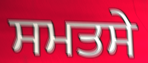
ਸਮਤਸੇ